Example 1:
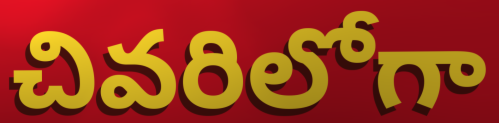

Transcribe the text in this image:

చివరిలోగా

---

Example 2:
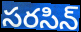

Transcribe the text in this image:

సరసిన్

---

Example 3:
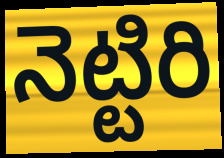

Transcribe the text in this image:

నెట్టిరి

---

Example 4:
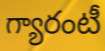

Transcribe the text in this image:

గ్యారంటీ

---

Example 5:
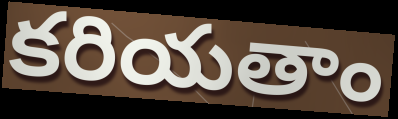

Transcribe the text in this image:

కరియతాం